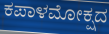
ಕಪಾಳಮೋಕ್ಷದ